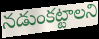
నడుంకట్టాలని